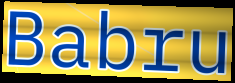
Babru